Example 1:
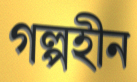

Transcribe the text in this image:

গল্পহীন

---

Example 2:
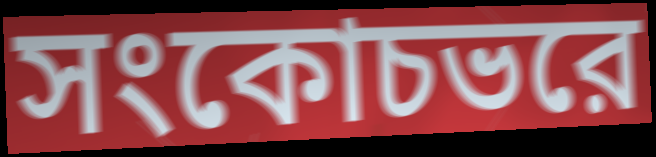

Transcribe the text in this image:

সংকোচভরে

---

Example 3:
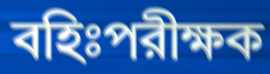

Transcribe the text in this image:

বহিঃপরীক্ষক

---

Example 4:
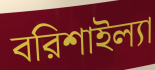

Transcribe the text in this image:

বরিশাইল্যা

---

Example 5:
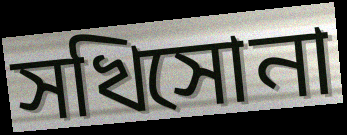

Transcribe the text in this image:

সখিসোনা